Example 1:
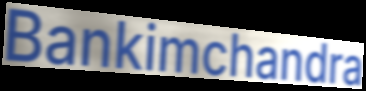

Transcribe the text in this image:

Bankimchandra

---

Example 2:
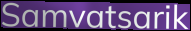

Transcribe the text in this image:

Samvatsarik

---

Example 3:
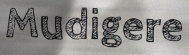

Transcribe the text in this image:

Mudigere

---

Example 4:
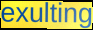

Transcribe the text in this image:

exulting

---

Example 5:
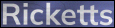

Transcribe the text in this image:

Ricketts